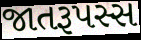
જાતરૂપસ્સ